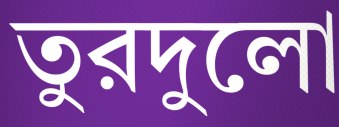
তুরদুলো